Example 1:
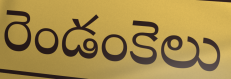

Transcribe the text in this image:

రెండంకెలు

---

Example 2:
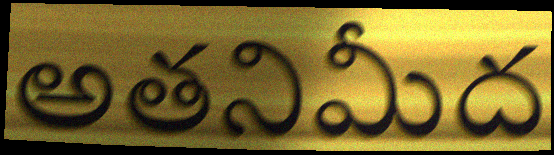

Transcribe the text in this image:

అతనిమీద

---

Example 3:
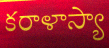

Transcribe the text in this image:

కరాళాస్యా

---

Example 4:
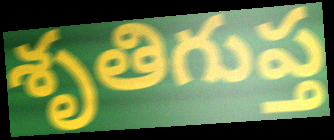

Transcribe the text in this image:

శృతిగుప్త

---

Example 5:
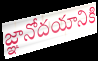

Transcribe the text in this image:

జ్ఞానోదయానికి